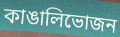
কাঙালিভোজন